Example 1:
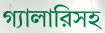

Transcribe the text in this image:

গ্যালারিসহ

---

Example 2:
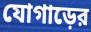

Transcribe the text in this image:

যোগাড়ের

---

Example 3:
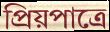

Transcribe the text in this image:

প্রিয়পাত্রে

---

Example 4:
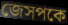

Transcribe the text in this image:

জেসপকে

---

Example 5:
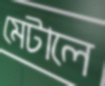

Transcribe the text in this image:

মেটালে